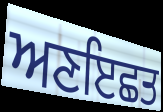
ਅਣਇਛਤ